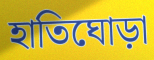
হাতিঘোড়া